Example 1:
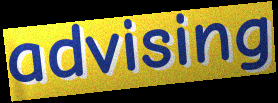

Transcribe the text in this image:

advising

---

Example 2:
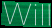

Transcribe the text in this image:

Will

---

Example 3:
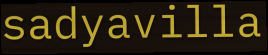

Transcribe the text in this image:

sadyavilla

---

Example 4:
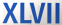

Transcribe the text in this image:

XLVII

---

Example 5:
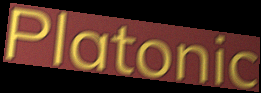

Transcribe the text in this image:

Platonic